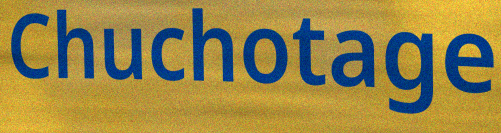
Chuchotage